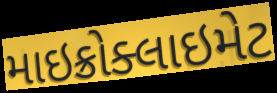
માઇક્રોક્લાઇમેટ